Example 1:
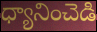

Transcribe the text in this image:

ధ్యానించెడి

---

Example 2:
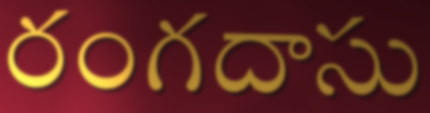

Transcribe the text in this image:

రంగదాసు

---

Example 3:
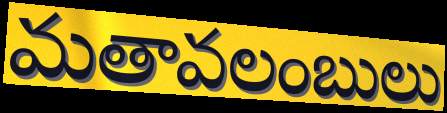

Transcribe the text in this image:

మతావలంబులు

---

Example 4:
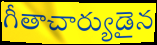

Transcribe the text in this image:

గీతాచార్యుడైన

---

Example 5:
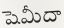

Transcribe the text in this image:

షెమీదా